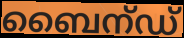
ബൈന്ഡ്